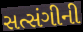
સત્સંગીની